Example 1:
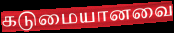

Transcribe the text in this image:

கடுமையானவை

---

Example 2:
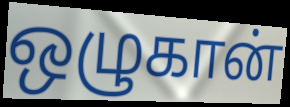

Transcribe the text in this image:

ஒழுகான்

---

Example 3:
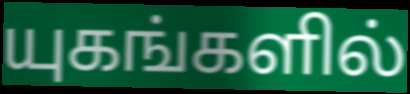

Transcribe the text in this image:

யுகங்களில்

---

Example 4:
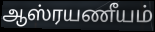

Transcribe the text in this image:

ஆஸ்ரயணீயம்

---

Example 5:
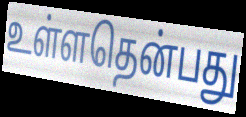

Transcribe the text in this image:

உள்ளதென்பது